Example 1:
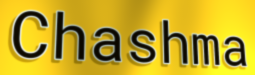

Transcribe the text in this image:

Chashma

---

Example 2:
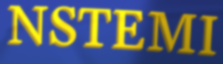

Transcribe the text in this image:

NSTEMI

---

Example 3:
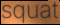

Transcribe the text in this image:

squat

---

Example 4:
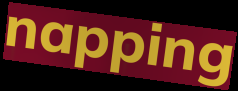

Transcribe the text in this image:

napping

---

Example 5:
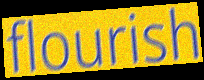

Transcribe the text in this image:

flourish